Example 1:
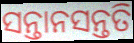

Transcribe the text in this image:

ସନ୍ତାନସନ୍ତତି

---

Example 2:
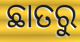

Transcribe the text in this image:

ଛାତରୁ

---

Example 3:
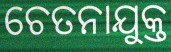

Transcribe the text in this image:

ଚେତନାଯୁକ୍ତ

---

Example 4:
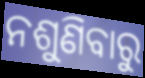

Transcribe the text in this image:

ନଶୁଣିବାରୁ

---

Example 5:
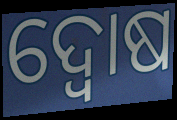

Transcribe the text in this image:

ଦ୍ୱୋଷ